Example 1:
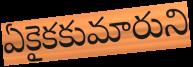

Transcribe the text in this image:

ఏకైకకుమారుని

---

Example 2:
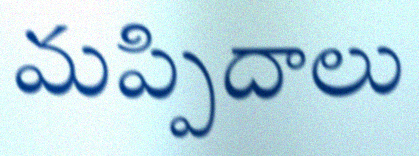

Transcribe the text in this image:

మప్పిదాలు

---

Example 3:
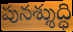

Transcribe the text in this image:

పునశ్శుద్ధి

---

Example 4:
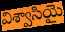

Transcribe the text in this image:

విశ్వాసియై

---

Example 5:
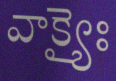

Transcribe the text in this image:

వాక్యైః